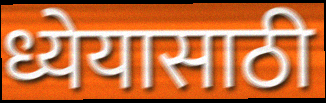
ध्येयासाठी